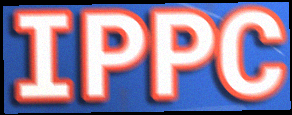
IPPC